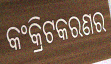
କଂକ୍ରିଟକରଣର